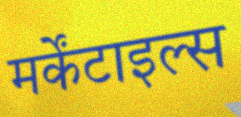
मर्केंटाइल्स